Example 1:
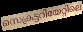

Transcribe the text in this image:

സെക്രട്ടറിയേറ്റിലെ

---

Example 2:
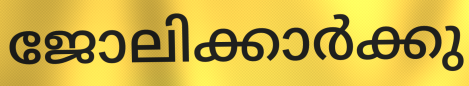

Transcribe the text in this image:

ജോലിക്കാർക്കു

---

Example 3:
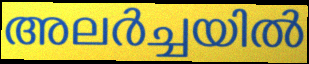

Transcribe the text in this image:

അലർച്ചയിൽ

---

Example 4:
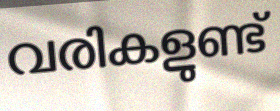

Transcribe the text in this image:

വരികളുണ്ട്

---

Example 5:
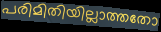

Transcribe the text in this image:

പരിമിതിയില്ലാത്തതോ